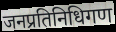
जनप्रतिनिधिगण